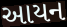
આયન